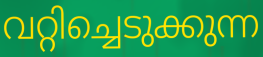
വറ്റിച്ചെടുക്കുന്ന